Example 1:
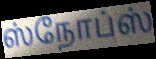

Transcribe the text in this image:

ஸ்நோப்ஸ்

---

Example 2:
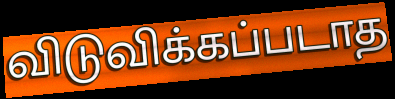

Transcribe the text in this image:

விடுவிக்கப்படாத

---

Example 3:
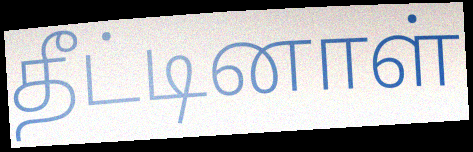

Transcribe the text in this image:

தீட்டினாள்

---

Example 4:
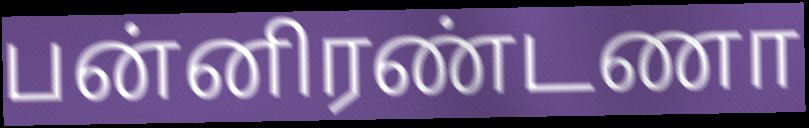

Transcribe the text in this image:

பன்னிரண்டணா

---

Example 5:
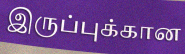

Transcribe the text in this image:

இருப்புக்கான